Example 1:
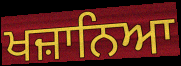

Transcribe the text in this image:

ਖਜ਼ਾਨਿਆ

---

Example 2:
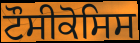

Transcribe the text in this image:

ਟੌਸੀਕੋਸਿਸ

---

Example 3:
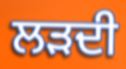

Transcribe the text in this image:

ਲੜਦੀ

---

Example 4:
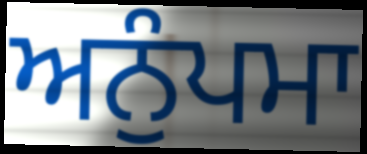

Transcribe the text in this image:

ਅਨੁੰਪਮਾ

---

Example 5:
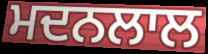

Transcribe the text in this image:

ਮਦਨਲਾਲ